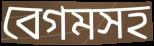
বেগমসহ